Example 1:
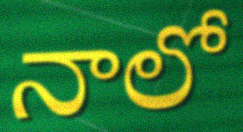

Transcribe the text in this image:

నాలో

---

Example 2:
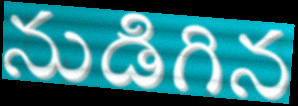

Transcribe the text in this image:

నుడిగిన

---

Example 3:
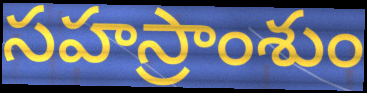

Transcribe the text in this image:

సహస్రాంశుం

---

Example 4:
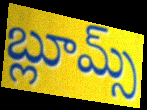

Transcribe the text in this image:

బ్లూమ్స్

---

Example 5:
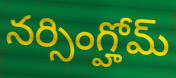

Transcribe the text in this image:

నర్సింగ్హోమ్